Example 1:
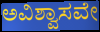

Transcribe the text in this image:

ಅವಿಶ್ವಾಸವೇ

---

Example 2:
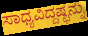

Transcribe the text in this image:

ಸಾಧ್ಯವಿದ್ದಷ್ಟನ್ನು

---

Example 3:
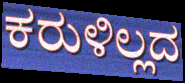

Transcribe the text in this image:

ಕರುಳಿಲ್ಲದ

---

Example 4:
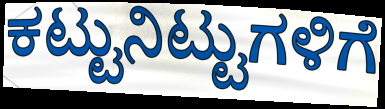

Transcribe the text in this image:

ಕಟ್ಟುನಿಟ್ಟುಗಳಿಗೆ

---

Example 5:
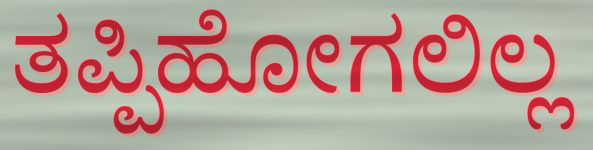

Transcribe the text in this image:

ತಪ್ಪಿಹೋಗಲಿಲ್ಲ